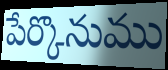
పేర్కొనుము